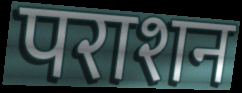
पराशन